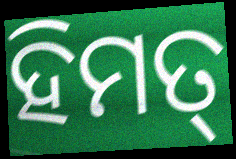
ହିମତ୍